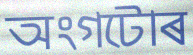
অংগটোৰ